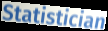
Statistician